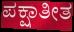
ಪಕ್ಷಾತೀತ